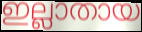
ഇല്ലാതായ